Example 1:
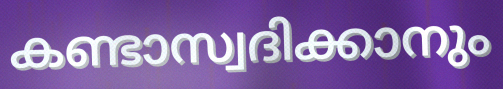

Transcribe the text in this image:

കണ്ടാസ്വദിക്കാനും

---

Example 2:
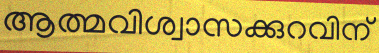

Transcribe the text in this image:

ആത്മവിശ്വാസക്കുറവിന്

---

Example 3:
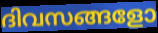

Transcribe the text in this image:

ദിവസങ്ങളോ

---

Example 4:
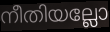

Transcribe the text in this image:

നീതിയല്ലോ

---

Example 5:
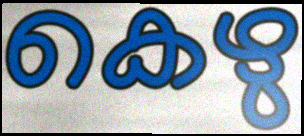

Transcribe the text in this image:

കെഴു